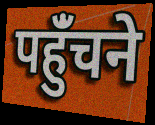
पहुंँचने